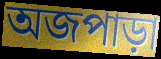
অজপাড়া